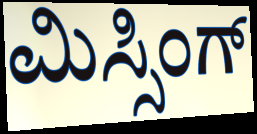
ಮಿಸ್ಸಿಂಗ್